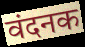
वंदनक